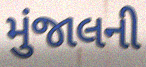
મુંજાલની